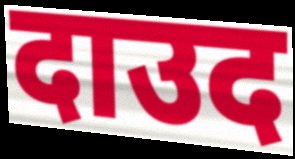
दाउद